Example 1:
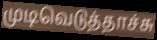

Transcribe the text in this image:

முடிவெடுத்தாச்சு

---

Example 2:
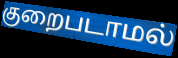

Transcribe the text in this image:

குறைபடாமல்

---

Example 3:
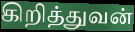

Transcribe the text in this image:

கிறித்துவன்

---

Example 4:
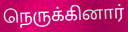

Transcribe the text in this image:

நெருக்கினார்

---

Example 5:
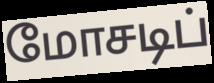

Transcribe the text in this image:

மோசடிப்